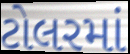
ટોલરમાં